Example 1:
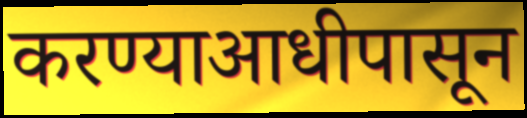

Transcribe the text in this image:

करण्याआधीपासून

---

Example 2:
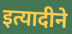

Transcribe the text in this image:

इत्यादीने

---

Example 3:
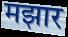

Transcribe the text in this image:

मझार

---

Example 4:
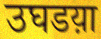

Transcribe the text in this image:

उघडय़ा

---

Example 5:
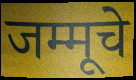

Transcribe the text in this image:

जम्मूचे